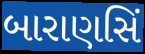
બારાણસિં